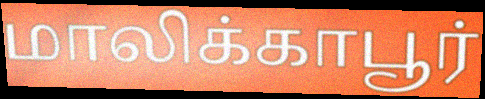
மாலிக்காபூர்